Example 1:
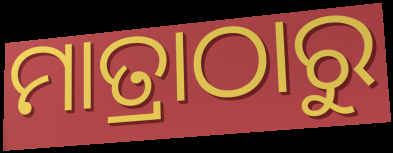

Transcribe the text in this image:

ମାତ୍ରାଠାରୁ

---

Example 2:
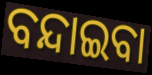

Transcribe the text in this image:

ବନ୍ଦାଇବା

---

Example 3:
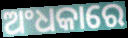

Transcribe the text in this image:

ଅଂଧକାରେ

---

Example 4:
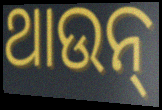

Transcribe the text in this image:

ଥାଉନ୍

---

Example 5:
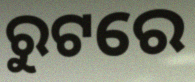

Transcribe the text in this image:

ରୁଟରେ